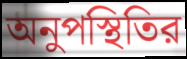
অনুপস্থিতির